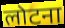
लोटना